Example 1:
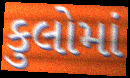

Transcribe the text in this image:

કુલોમાં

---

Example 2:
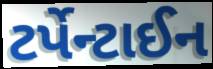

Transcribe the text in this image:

ટર્પેન્ટાઈન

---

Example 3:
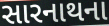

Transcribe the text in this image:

સારનાથના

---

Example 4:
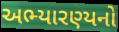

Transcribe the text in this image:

અભ્યારણ્યનો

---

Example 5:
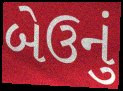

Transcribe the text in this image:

બેઉનું